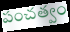
పంచత్వం